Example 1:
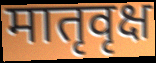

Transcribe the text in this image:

मातृवृक्ष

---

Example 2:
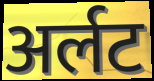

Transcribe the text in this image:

अर्लट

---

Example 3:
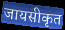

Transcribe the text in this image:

जायसीकृत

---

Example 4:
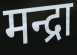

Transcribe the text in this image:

मन्द्रा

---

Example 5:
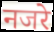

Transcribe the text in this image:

नजरे